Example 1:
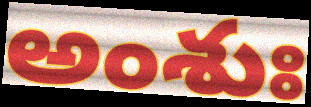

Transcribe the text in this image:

అంశుః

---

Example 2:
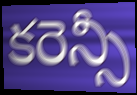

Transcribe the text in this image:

కరెన్సీ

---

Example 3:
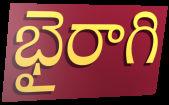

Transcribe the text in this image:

భైరాగి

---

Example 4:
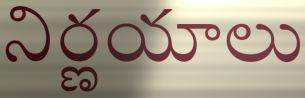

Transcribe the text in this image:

నిర్ణయాలు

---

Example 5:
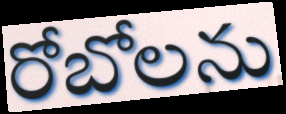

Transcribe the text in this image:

రోబోలను